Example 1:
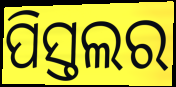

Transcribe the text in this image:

ପିସ୍ତଲର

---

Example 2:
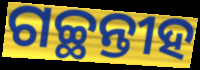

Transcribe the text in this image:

ଗଚ୍ଛନ୍ତୀହ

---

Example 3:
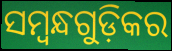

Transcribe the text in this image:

ସମ୍ବନ୍ଧଗୁଡ଼ିକର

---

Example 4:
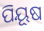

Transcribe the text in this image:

ପିୟୂଷ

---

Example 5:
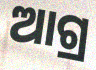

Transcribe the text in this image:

ଆଗ୍ର